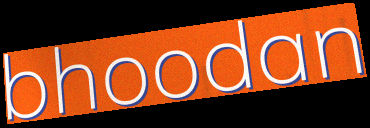
bhoodan